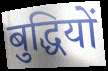
बुद्धियों